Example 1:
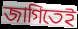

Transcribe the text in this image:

জাগিতেই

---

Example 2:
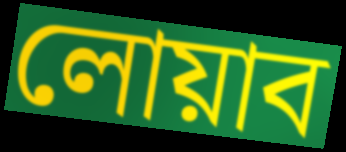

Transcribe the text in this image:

লোয়াব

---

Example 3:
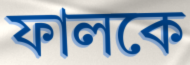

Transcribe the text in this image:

ফালকে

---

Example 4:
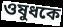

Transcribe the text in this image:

ওষুধকে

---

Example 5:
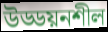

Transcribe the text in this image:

উড্ডয়নশীল